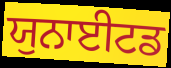
ਯੁਨਾਈਟਡ